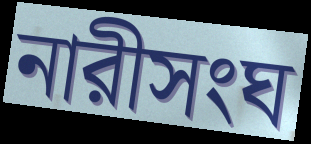
নারীসংঘ